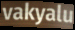
vakyalu